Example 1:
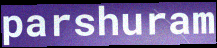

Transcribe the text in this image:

parshuram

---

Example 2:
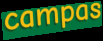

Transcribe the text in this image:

campas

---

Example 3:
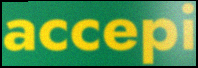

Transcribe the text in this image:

accepi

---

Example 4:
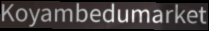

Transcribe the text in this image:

Koyambedumarket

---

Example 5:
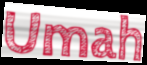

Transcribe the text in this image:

Umah